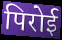
पिरोई